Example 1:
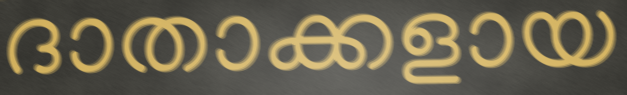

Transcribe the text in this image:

ദാതാക്കളായ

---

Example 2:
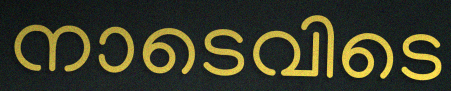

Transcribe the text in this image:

നാടെവിടെ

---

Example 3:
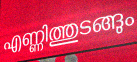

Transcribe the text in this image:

എണ്ണിത്തുടങ്ങും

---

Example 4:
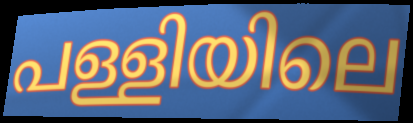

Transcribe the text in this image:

പള്ളിയിലെ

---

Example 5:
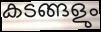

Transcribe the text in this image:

കടങ്ങളും